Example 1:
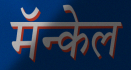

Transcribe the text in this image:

मॅन्केल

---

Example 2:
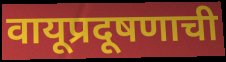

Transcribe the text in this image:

वायूप्रदूषणाची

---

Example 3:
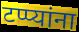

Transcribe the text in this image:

टप्प्यांना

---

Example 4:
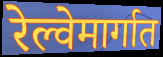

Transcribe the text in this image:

रेल्वेमार्गात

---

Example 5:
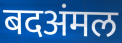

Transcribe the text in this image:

बदअंमल